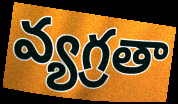
వ్యగ్రతా